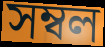
সম্বল